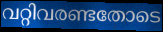
വറ്റിവരണ്ടതോടെ